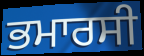
ਭਮਾਰਸੀ